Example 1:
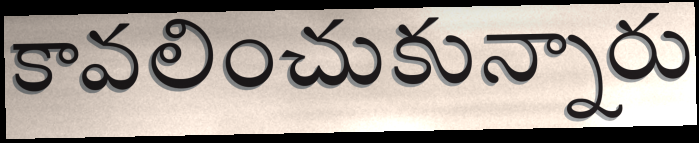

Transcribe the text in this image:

కావలించుకున్నారు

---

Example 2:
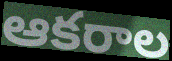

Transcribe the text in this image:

ఆకరాల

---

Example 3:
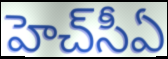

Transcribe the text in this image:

హెచ్‌సీఏ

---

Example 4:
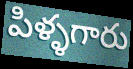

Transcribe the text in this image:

పిళ్ళగారు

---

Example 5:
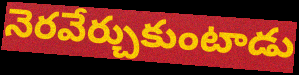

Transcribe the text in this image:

నెరవేర్చుకుంటాడు